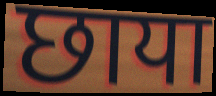
छाया